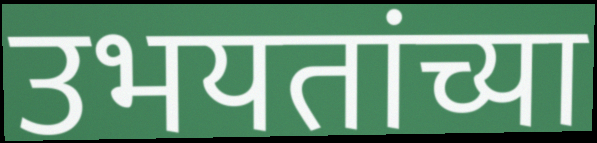
उभयतांच्या